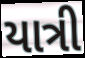
યાત્રી